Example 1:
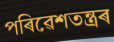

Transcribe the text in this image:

পৰিৱেশতন্ত্ৰৰ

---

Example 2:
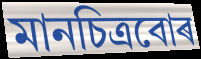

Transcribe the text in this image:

মানচিত্ৰবোৰ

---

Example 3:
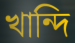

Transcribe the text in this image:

খান্দি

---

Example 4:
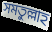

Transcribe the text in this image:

সমতুল্লাহ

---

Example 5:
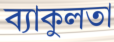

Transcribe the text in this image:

ব্যাকুলতা